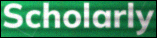
Scholarly